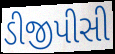
ડીજીપીસી